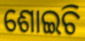
ଶୋଇଚି